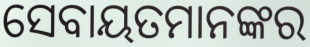
ସେବାୟତମାନଙ୍କର